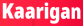
Kaarigan